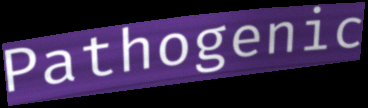
Pathogenic